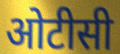
ओटीसी